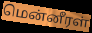
மென்னீரள்